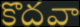
కొదవా